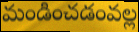
మండించడంవల్ల